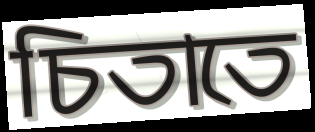
চিতাতে